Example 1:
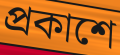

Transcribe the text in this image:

প্রকাশে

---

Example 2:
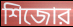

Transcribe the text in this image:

শিজোর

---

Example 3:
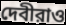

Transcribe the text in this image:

দেবীরাও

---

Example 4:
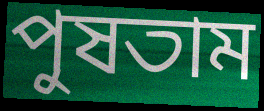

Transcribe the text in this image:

পুষতাম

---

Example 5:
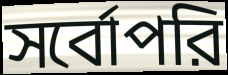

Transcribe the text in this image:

সর্বোপরি